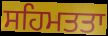
ਸਹਿਮਤਤਾ